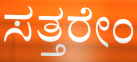
ಸತ್ತರೇಂ